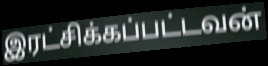
இரட்சிக்கப்பட்டவன்